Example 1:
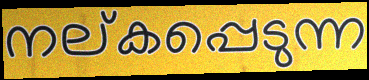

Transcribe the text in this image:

നല്കപ്പെടുന്ന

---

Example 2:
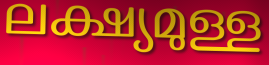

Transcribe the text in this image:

ലക്ഷ്യമുള്ള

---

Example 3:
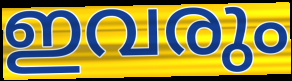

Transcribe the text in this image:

ഇവരും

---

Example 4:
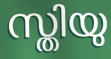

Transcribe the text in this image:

സ്തിയു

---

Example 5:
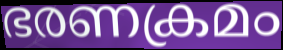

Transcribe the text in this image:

ഭരണക്രമം